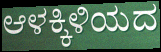
ಆಳಕ್ಕಿಳಿಯದ